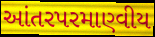
આંતરપરમાણ્વીય